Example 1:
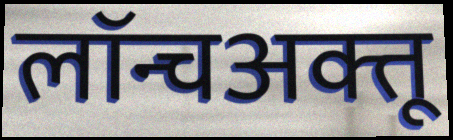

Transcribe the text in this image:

लॉन्चअक्तू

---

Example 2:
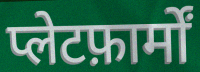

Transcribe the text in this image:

प्लेटफ़ार्मों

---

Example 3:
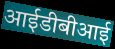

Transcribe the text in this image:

आईडीबीआई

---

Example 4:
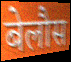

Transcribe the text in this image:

बेलौस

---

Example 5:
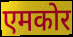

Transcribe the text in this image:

एमकोर